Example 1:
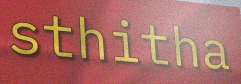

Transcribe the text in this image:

sthitha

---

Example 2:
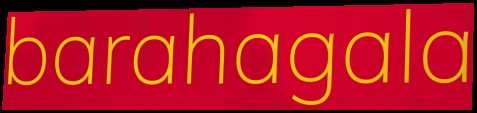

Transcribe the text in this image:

barahagala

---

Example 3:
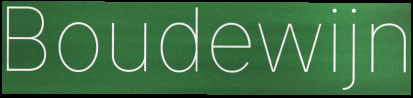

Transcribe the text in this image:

Boudewijn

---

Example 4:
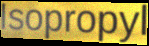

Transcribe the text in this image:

Isopropyl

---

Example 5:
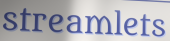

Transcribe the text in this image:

streamlets